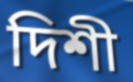
দিশী